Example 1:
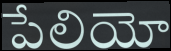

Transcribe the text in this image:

పేలియో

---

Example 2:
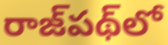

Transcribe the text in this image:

రాజ్‌పథ్‌లో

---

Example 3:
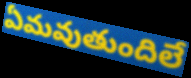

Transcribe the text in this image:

ఏమవుతుందిలే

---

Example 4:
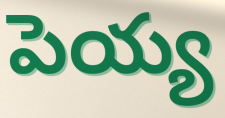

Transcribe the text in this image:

పెయ్య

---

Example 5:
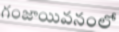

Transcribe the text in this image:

గంజాయివనంలో